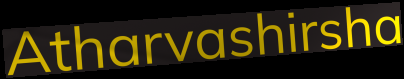
Atharvashirsha